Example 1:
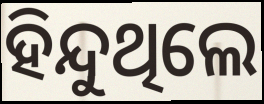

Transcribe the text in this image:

ହିନ୍ଦୁଥିଲେ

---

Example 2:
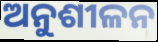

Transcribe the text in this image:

ଅନୁଶୀଳନ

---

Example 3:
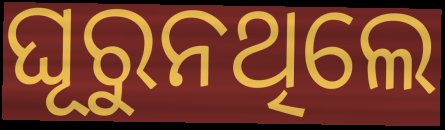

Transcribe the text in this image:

ଘୂରୁନଥିଲେ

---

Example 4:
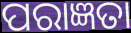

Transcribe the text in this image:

ପରାଜ୍ଞତା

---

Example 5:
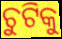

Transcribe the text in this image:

ଚୁଟିକୁ